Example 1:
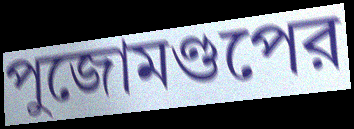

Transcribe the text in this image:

পুজোমণ্ডপের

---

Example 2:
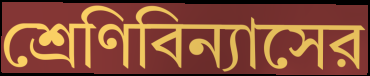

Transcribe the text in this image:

শ্রেণিবিন্যাসের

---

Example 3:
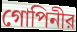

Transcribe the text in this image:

গোপিনীর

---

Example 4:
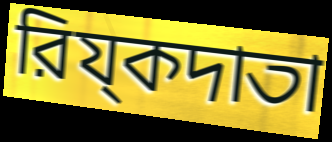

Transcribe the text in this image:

রিয্কদাতা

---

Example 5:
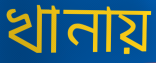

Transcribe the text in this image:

খানায়